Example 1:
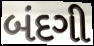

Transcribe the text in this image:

બંદગી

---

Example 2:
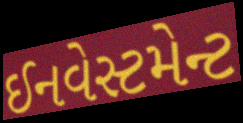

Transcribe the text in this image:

ઈનવેસ્ટમેન્ટ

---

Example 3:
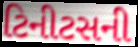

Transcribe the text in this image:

ટિનીટસની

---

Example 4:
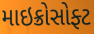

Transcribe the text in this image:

માઇક્રોસોફ્ટ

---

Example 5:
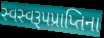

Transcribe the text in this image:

સ્વસ્વરૂપપ્રાપ્તિના